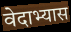
वेदाभ्यास